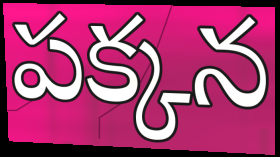
పక్కన